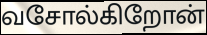
வசோல்கிறோன்